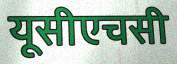
यूसीएचसी